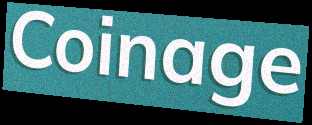
Coinage